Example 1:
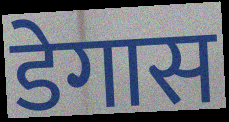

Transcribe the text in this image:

डेगास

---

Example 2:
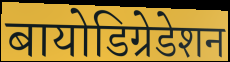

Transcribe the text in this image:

बायोडिग्रेडेशन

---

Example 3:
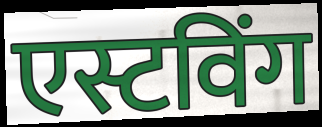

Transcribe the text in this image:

एस्टविंग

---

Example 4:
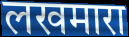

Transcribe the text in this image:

लखमारा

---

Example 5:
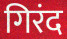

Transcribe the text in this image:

गिरंद